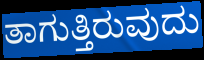
ತಾಗುತ್ತಿರುವುದು